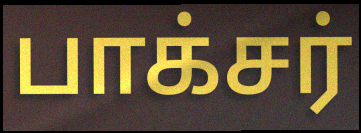
பாக்சர்